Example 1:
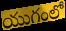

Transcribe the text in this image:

యుగంలో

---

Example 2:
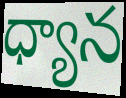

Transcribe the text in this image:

ధ్యాన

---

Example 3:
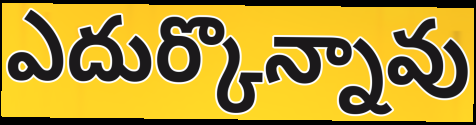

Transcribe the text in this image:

ఎదుర్కొన్నావు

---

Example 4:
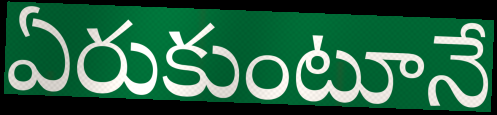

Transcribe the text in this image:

ఏరుకుంటూనే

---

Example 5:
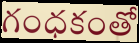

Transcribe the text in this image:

గంధకంతో